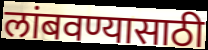
लांबवण्यासाठी